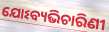
ଯୋଽବ୍ୟଭିଚାରିଣୀ